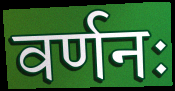
वर्णनः